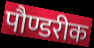
पौण्डरीक